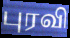
புரவி